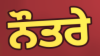
ਨੌਤਰੇ